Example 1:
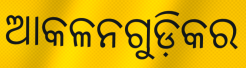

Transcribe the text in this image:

ଆକଳନଗୁଡ଼ିକର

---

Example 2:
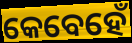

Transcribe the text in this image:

କେବେହେଁ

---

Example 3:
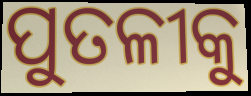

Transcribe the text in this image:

ପୁତଳୀକୁ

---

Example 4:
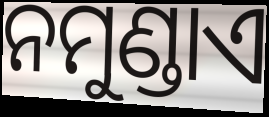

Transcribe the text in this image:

ନମୁଣ୍ଡାଏ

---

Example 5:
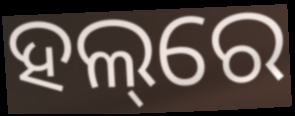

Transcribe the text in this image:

ହଲ୍‌ରେ